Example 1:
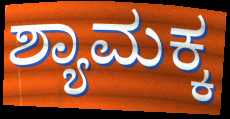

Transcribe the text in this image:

ಶ್ಯಾಮಕ್ಕ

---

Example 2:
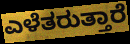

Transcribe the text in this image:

ಎಳೆತರುತ್ತಾರೆ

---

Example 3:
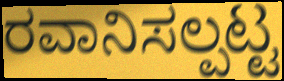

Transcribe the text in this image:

ರವಾನಿಸಲ್ಪಟ್ಟ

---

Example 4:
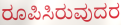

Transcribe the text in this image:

ರೂಪಿಸಿರುವುದರ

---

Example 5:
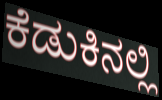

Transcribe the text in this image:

ಕೆಡುಕಿನಲ್ಲಿ